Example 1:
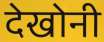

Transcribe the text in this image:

देखोनी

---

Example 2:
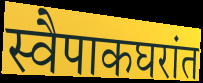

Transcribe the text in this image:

स्वैपाकघरांत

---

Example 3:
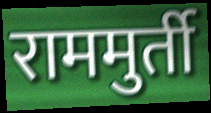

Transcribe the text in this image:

राममुर्ती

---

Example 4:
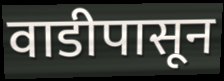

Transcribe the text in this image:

वाडीपासून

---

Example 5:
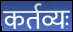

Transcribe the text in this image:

कर्तव्यः